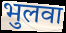
भुलवा